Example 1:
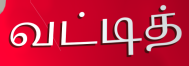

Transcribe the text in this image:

வட்டித்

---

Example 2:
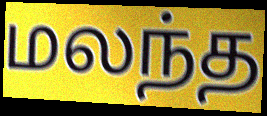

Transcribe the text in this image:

மலந்த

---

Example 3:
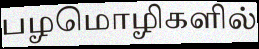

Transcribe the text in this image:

பழமொழிகளில்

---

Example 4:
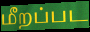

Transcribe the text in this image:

மீறப்பட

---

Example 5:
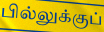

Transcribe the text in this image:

பில்லுக்குப்